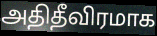
அதிதீவிரமாக